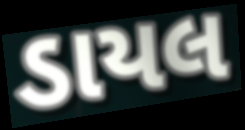
ડાયલ